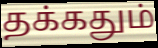
தக்கதும்